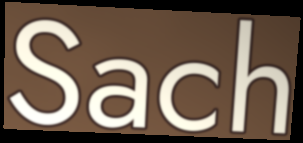
Sach